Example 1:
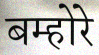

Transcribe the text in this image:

बम्होरे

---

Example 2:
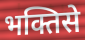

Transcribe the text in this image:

भक्तिसे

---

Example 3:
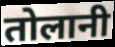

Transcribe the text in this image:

तोलानी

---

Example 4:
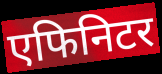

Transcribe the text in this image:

एफिनिटर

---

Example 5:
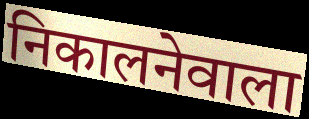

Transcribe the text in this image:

निकालनेवाला